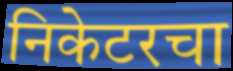
निकेटरचा